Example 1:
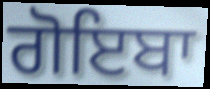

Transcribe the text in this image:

ਗੋਇਬਾ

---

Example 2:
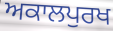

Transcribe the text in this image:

ਅਕਾਲਪੁਰਖ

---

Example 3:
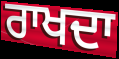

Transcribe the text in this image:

ਰਾਖਦਾ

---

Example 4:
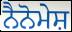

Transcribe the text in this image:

ਨੈਨੋਮੇਸ਼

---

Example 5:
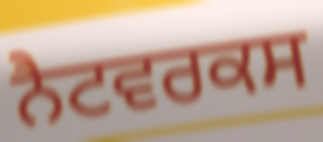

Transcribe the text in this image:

ਨੈਟਵਰਕਸ